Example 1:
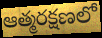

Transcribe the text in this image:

ఆత్మరక్షణలో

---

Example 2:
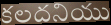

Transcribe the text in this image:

కలదనియు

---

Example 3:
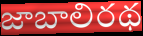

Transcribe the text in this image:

జాబాలిరథ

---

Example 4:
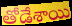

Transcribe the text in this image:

తోడేశాయి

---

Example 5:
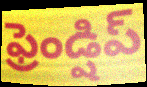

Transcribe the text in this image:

ఫ్రెండ్షిప్